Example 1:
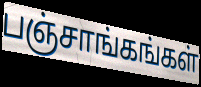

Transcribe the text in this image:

பஞ்சாங்கங்கள்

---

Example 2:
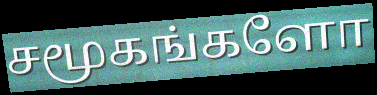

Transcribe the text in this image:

சமூகங்களோ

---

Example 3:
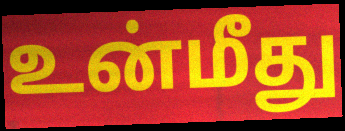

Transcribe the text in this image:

உன்மீது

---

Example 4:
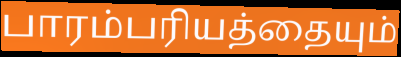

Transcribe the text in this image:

பாரம்பரியத்தையும்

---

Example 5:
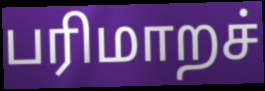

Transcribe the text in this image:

பரிமாறச்